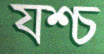
যশ্চ